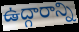
ఉద్గారాన్ని